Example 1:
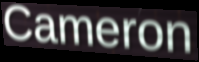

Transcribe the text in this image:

Cameron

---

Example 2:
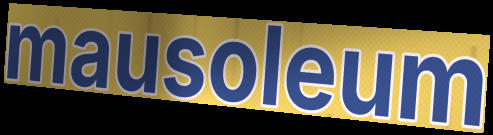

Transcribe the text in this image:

mausoleum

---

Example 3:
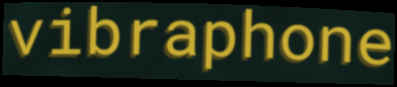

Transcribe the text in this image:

vibraphone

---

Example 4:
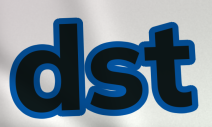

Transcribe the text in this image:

dst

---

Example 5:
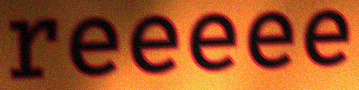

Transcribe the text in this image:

reeeee